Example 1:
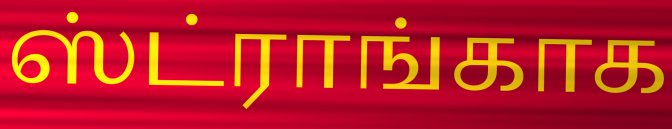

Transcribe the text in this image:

ஸ்ட்ராங்காக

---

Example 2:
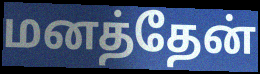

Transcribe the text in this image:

மனத்தேன்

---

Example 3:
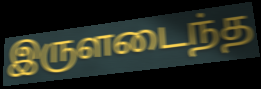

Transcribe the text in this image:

இருளடைந்த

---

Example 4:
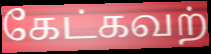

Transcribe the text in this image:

கேட்கவற்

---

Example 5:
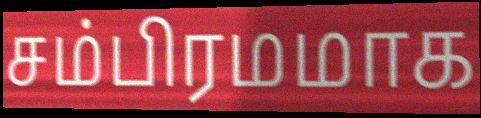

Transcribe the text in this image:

சம்பிரமமாக